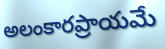
అలంకారప్రాయమే